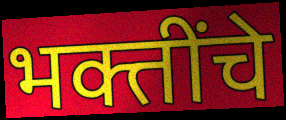
भक्तींचे